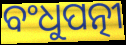
ବଂଧୁପତ୍ନୀ